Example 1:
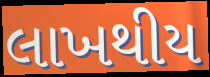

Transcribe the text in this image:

લાખથીય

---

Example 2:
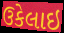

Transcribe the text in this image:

ઉકેલાઇ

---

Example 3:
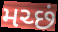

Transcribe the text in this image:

મચ્છં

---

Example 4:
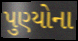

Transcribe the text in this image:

પુણ્યોના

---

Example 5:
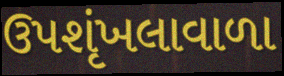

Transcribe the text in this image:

ઉપશૃંખલાવાળા